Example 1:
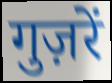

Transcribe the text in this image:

गुज़रें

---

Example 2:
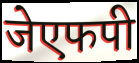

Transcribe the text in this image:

जेएफपी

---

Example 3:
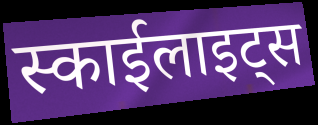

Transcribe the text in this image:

स्काईलाइट्स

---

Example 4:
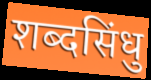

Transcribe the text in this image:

शब्दसिंधु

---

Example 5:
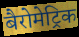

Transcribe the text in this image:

बैरोमेट्रिक